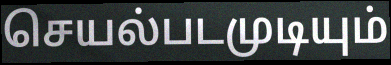
செயல்படமுடியும்